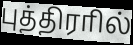
புத்திரரில்